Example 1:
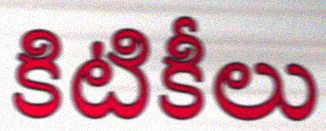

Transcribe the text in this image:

కిటికీలు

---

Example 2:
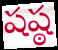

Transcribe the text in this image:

షష్ఠ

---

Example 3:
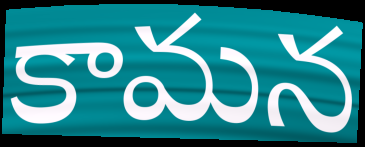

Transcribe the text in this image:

కామన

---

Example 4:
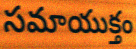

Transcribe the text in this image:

సమాయుక్తం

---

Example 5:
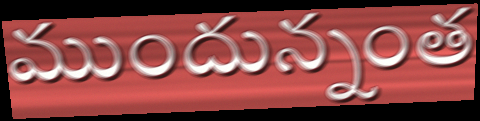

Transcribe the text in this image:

ముందున్నంత